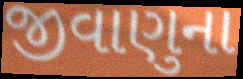
જીવાણુના